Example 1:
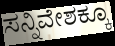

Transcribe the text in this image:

ಸನ್ನಿವೇಶಕ್ಕೂ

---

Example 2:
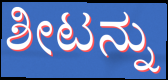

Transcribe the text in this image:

ಶೀಟನ್ನು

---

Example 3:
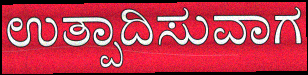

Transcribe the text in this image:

ಉತ್ಪಾದಿಸುವಾಗ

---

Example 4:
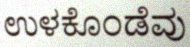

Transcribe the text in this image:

ಉಳಕೊಂಡೆವು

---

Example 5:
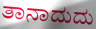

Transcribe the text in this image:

ತಾನಾದುದು